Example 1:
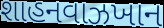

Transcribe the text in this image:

શાહનવાઝખાન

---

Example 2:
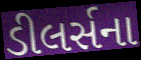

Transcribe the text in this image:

ડીલર્સના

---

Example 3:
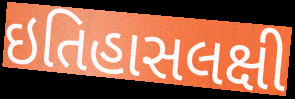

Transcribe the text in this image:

ઇતિહાસલક્ષી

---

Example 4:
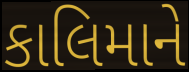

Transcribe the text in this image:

કાલિમાને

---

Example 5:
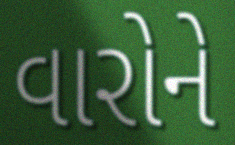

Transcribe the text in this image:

વારોને